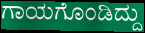
ಗಾಯಗೊಂಡಿದ್ದು